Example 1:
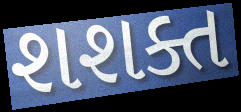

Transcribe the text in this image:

શશક્ત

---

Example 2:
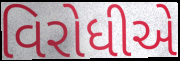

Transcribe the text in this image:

વિરોધીએ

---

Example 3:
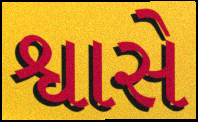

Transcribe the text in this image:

શ્વાસે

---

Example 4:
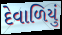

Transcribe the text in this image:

દેવાળિયું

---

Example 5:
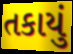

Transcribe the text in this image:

તકાયું